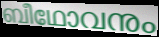
ബീഥോവനും